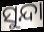
ସୁନ୍ଦା